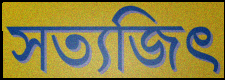
সত্যজিৎ